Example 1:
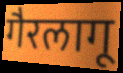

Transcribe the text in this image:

गैरलागू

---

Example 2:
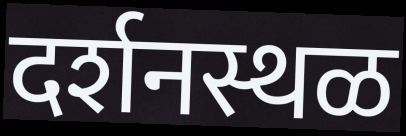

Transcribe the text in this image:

दर्शनस्थळ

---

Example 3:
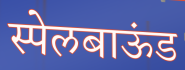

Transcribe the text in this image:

स्पेलबाऊंड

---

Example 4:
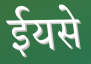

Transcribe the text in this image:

ईयसे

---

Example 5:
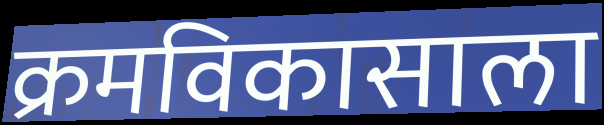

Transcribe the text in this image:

क्रमविकासाला